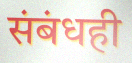
संबंधही